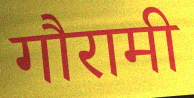
गौरामी